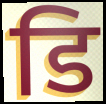
डि